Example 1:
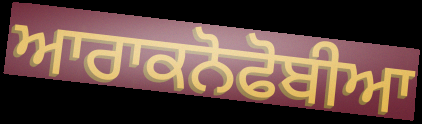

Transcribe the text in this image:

ਆਰਾਕਨੋਫੋਬੀਆ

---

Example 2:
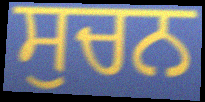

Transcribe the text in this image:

ਸੁਚਨ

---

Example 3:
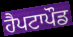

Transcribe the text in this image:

ਹੈਪਟਾਪੌਡ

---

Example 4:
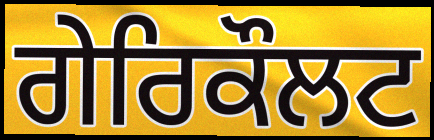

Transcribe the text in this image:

ਗੇਰਿਕੌਲਟ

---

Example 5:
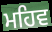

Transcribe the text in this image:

ਮਹਿਵ